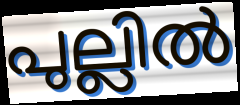
പുല്ലിൽ